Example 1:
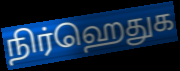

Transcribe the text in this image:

நிர்ஹெதுக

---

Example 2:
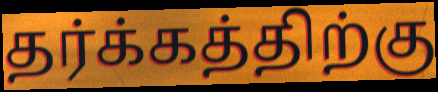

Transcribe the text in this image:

தர்க்கத்திற்கு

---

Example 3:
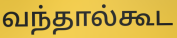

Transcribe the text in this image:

வந்தால்கூட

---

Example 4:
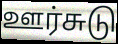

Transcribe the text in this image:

ஊர்சுடு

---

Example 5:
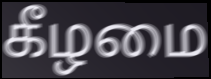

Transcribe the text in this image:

கீழமை